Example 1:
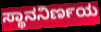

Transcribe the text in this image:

ಸ್ಥಾನನಿರ್ಣಯ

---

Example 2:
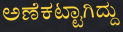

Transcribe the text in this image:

ಅಣೆಕಟ್ಟಾಗಿದ್ದು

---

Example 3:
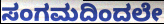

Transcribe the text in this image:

ಸಂಗಮದಿಂದಲೇ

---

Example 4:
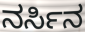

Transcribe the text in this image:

ನರ್ಸಿನ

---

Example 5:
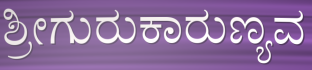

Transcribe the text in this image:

ಶ್ರೀಗುರುಕಾರುಣ್ಯವ